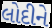
લોદીને